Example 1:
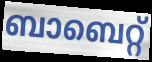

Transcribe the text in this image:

ബാബെറ്റ്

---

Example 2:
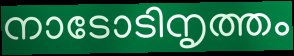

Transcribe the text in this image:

നാടോടിനൃത്തം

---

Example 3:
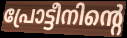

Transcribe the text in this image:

പ്രോട്ടീനിന്റെ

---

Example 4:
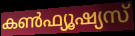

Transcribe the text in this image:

കൺഫ്യൂഷ്യസ്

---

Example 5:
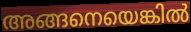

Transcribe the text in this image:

അങ്ങനെയെങ്കിൽ